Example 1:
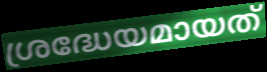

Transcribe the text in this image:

ശ്രദ്ധേയമായത്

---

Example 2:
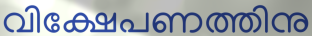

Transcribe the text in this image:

വിക്ഷേപണത്തിനു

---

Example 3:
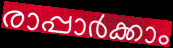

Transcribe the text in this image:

രാപ്പാർക്കാം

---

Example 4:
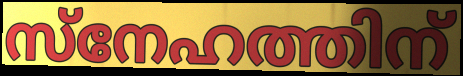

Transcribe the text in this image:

സ്നേഹത്തിന്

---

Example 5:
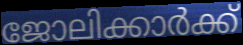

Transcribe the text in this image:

ജോലിക്കാർക്ക്